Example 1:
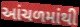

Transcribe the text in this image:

આંચળમાંથી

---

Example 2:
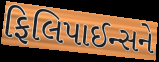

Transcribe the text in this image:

ફિલિપાઈન્સને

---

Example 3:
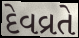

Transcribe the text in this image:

દેવવ્રતે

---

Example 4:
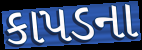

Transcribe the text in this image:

કાપડના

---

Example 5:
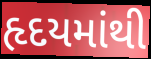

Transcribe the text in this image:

હૃદયમાંથી